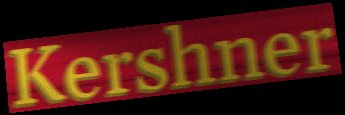
Kershner